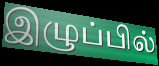
இழுப்பில்